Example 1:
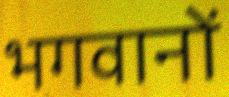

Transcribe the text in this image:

भगवानों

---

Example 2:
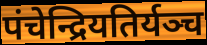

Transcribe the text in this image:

पंचेन्द्रियतिर्यञ्च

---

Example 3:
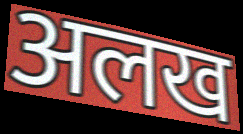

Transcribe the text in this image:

अलख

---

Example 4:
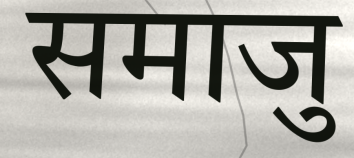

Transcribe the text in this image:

समाजु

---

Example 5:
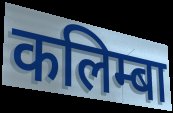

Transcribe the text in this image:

कलिम्बा